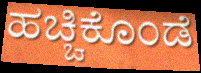
ಹಚ್ಚಿಕೊಂಡೆ